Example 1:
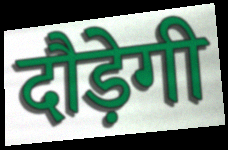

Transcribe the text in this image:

दौड़ेगी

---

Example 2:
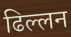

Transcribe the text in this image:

ढिल्लन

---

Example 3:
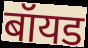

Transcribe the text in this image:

बॉयड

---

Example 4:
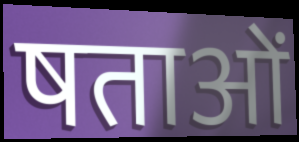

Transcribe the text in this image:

षताओं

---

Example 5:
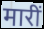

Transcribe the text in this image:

मारीं